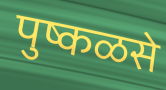
पुष्कळसे